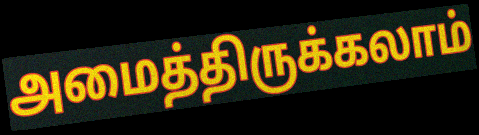
அமைத்திருக்கலாம்